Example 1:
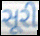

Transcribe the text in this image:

સૂરી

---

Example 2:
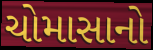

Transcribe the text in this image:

ચોમાસાનો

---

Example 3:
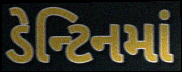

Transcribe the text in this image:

ડેન્ટિનમાં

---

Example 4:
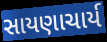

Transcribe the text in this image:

સાયણાચાર્ય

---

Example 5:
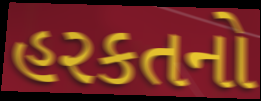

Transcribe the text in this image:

હરકતનો